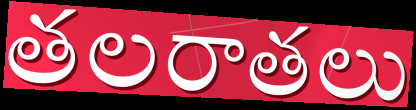
తలరాతలు